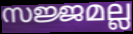
സജ്ജമല്ല